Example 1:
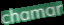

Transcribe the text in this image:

chamar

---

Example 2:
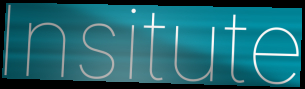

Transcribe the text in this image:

Insitute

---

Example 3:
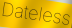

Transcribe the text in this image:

Dateless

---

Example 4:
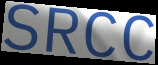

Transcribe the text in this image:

SRCC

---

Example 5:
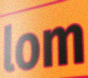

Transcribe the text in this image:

lom